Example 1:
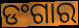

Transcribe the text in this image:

ଡଂଗାର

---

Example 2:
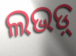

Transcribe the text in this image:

ଲଭଡ଼୍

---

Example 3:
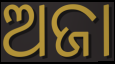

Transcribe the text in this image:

ଅଜା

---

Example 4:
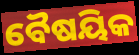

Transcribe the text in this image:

ବୈଷୟିକ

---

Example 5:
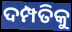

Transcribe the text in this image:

ଦମ୍ପତିକୁ